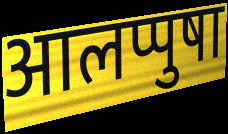
आलप्पुषा